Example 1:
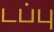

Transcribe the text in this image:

டப்பு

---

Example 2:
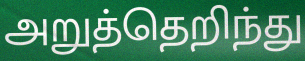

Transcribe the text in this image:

அறுத்தெறிந்து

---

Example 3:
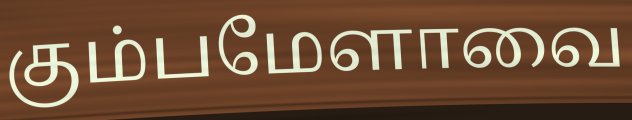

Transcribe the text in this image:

கும்பமேளாவை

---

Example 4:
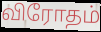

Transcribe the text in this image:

விரோதம்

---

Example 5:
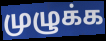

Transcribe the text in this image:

முழுக்க